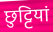
छुट्टियां